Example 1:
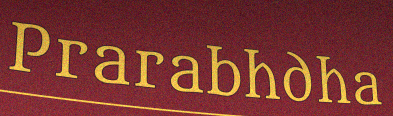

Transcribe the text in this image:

Prarabhdha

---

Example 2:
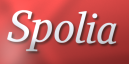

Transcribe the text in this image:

Spolia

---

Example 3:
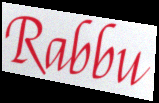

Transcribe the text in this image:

Rabbu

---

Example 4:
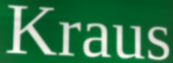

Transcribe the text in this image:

Kraus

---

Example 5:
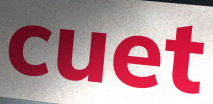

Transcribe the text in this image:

cuet